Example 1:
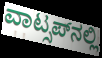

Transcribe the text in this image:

ವಾಟ್ಸಪ್‍ನಲ್ಲಿ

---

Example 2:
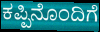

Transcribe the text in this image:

ಕಪ್ಪಿನೊಂದಿಗೆ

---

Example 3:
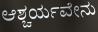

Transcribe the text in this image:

ಆಶ್ಚರ್ಯವೇನು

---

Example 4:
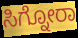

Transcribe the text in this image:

ಸಿಗ್ನೋರಾ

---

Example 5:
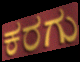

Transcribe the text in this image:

ಕರಗು